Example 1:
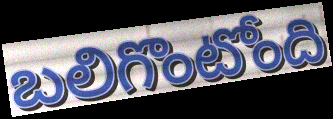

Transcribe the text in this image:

బలిగొంటోంది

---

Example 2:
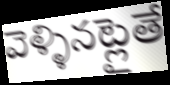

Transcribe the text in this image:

వెళ్ళినట్లైతే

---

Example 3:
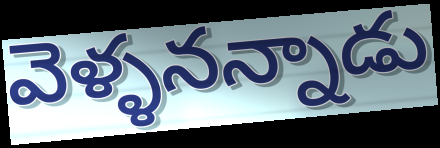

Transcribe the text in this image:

వెళ్ళనన్నాడు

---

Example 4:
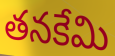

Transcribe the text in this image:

తనకేమి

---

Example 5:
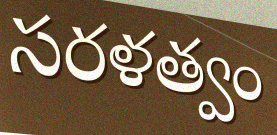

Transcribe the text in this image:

సరళత్వం